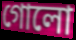
গোলো